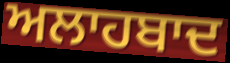
ਅਲਾਹਬਾਦ